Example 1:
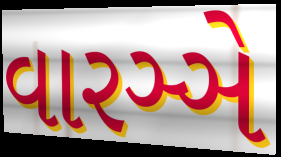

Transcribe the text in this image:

વારઞ્ઞે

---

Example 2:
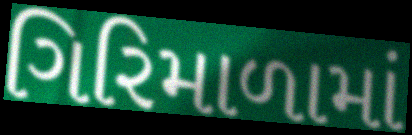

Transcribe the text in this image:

ગિરિમાળામાં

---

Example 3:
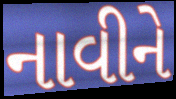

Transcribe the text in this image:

નાવીને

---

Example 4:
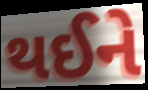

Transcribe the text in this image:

થઈને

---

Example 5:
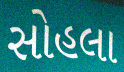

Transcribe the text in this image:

સોહલા